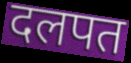
दलपत